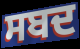
ਸਬਦ